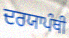
ਦਰਯਾਪੰਥੀ